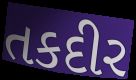
તકદીર